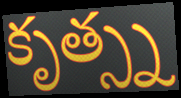
కృత్స్న